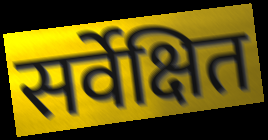
सर्वेक्षित